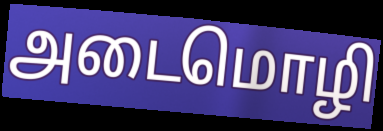
அடைமொழி